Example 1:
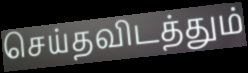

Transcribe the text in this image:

செய்தவிடத்தும்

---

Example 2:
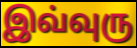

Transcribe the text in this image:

இவ்வுரு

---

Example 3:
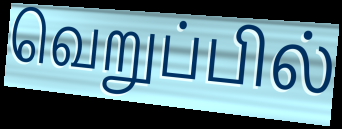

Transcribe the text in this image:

வெறுப்பில்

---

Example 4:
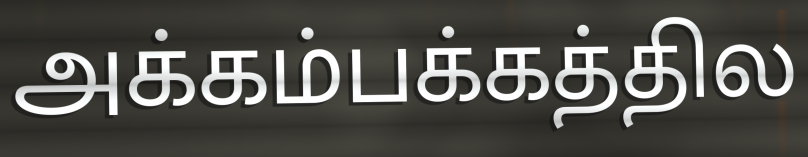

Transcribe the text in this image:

அக்கம்பக்கத்தில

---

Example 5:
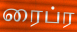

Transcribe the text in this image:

ரைப்ர